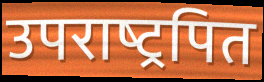
उपराष्ट्रपित